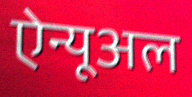
ऐन्यूअल